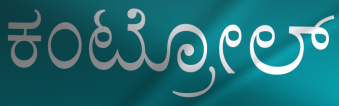
ಕಂಟ್ರೋಲ್